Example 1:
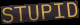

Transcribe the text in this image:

STUPID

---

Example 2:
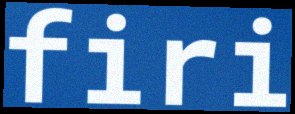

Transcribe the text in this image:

firi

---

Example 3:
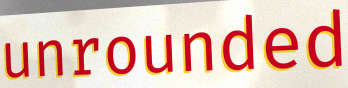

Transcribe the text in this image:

unrounded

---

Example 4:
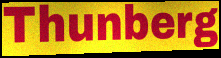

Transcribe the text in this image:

Thunberg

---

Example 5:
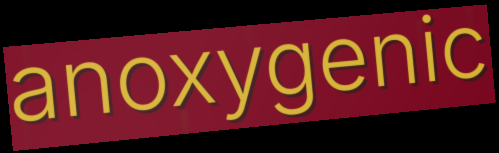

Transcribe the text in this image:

anoxygenic